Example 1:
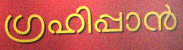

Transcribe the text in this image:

ഗ്രഹിപ്പാൻ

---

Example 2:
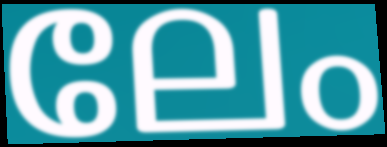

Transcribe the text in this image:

ലേം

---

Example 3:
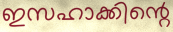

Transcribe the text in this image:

ഇസഹാക്കിന്റെ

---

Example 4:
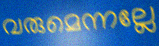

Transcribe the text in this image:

വരുമെന്നല്ലേ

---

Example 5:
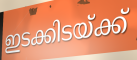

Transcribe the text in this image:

ഇടക്കിടയ്ക്ക്